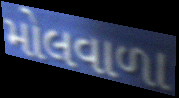
મોલવાળા